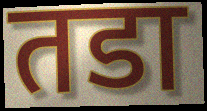
तडा